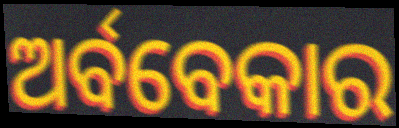
ଅର୍ବବେକାର